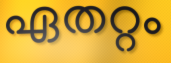
ഏതറ്റം